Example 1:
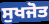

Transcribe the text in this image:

ਸੁਖਜੋਤ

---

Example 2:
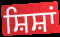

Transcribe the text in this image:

ਸ਼ਿਸ਼ਾਂ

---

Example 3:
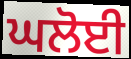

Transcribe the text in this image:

ਘਲੋਈ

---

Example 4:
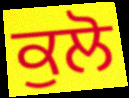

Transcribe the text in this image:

ਕੁਲੋ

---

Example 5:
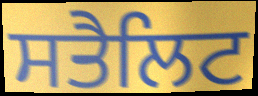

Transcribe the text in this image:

ਸਤੈਲਿਟ